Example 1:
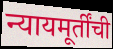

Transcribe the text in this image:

न्यायमूर्तींची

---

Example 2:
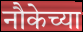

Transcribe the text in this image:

नौकेच्या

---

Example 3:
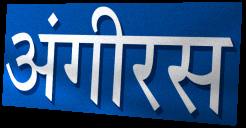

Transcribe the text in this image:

अंगीरस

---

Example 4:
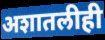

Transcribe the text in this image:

अशातलीही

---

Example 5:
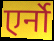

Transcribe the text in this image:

एर्नो